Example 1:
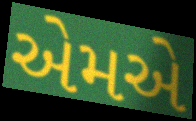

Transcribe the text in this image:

એમએ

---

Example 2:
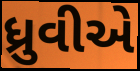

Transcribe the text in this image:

ધ્રુવીએ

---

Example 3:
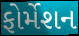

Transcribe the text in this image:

ફોર્મેશન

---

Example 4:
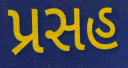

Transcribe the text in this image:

પ્રસહ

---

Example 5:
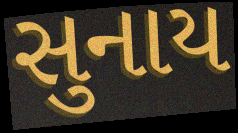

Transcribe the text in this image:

સુનાય